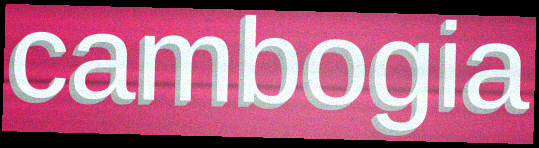
cambogia